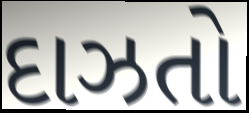
દાઝતો